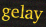
gelay